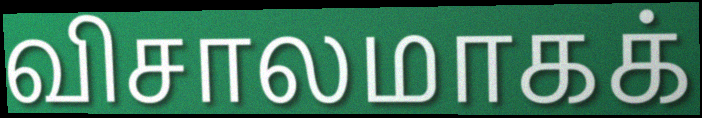
விசாலமாகக்